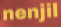
nenjil